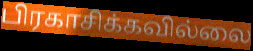
பிரகாசிக்கவில்லை